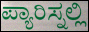
ಪ್ಯಾರಿಸ್ನಲ್ಲಿ